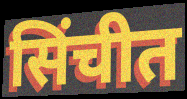
सिंचीत